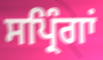
ਸਪ੍ਰਿੰਗਾਂ